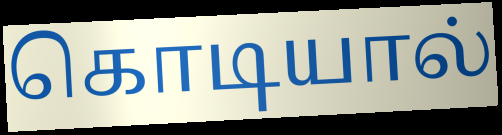
கொடியால்